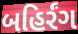
બહિર્રંગ